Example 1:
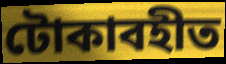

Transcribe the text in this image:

টোকাবহীত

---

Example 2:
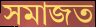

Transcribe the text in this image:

সমাজত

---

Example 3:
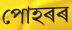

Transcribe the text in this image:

পোহৰৰ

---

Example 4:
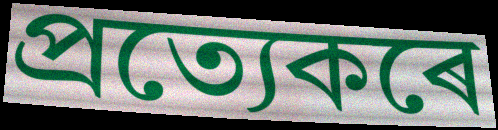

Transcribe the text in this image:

প্ৰত্যেকৰে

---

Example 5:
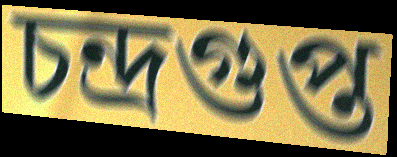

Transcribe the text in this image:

চন্দ্ৰগুপ্ত